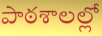
పాఠశాలల్లో